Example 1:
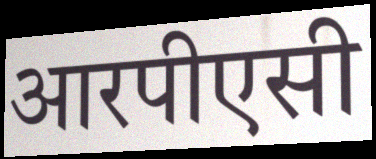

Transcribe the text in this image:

आरपीएसी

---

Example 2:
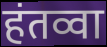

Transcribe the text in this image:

हंतव्वा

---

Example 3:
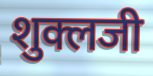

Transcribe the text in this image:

शुक्‍लजी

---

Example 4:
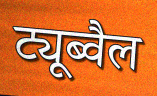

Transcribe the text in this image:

ट्यूब्वैल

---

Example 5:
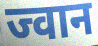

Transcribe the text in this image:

ज्वान